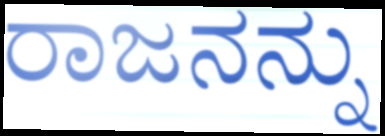
ರಾಜನನ್ನು